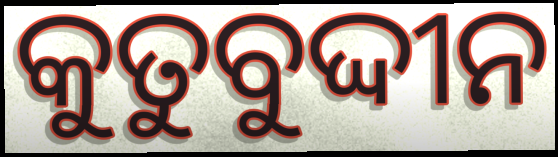
କୁତୁବୁଦ୍ଦୀନ